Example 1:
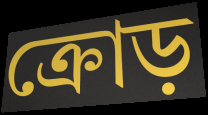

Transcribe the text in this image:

ক্রোড়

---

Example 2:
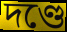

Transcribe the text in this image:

দণ্ডে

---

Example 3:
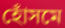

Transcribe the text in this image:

হোঁসমে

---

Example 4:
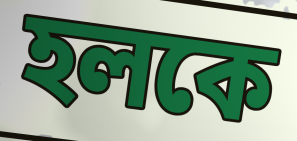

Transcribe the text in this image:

হলকে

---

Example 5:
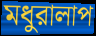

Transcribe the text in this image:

মধুরালাপ